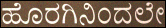
ಹೊರಗಿನಿಂದಲೇ